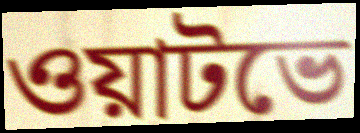
ওয়াটভে